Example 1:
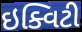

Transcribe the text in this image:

ઇક્વિટી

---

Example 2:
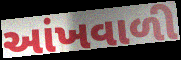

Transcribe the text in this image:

આંખવાળી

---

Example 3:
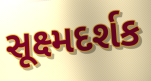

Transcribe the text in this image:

સૂક્ષ્મદર્શક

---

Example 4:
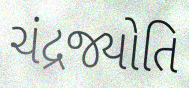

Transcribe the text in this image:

ચંદ્રજ્યોતિ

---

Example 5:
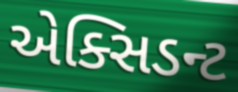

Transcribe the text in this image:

એક્સિડન્ટ